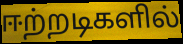
ஈற்றடிகளில்